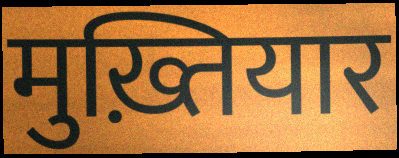
मुख़्तियार